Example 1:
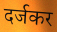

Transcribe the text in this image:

दर्जकर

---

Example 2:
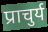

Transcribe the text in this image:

प्राचुर्य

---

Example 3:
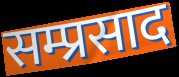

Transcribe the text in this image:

सम्प्रसाद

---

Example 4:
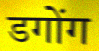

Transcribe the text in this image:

डगोंग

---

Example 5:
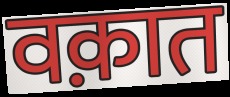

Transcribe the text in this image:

वक़ात